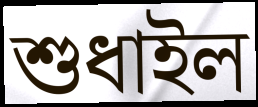
শুধাইল